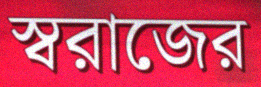
স্বরাজের